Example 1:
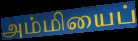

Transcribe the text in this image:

அம்மியைப்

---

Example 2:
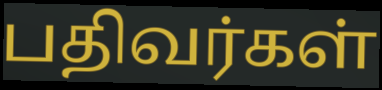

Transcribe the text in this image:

பதிவர்கள்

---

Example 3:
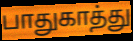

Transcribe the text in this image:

பாதுகாத்து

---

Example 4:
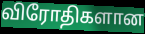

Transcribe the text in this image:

விரோதிகளான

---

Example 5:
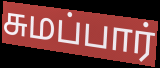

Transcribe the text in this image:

சுமப்பார்